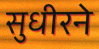
सुधीरने